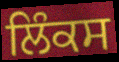
ਲਿੰਕਸ